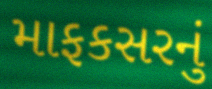
માફકસરનું